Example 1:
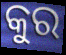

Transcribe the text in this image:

କୁର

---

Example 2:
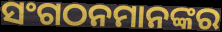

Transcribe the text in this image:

ସଂଗଠନମାନଙ୍କର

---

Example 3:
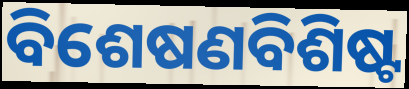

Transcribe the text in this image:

ବିଶେଷଣବିଶିଷ୍ଟ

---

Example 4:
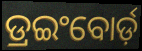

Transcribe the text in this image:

ଡ୍ରଇଂବୋର୍ଡ଼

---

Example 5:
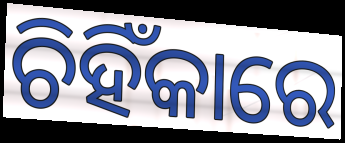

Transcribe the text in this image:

ଚିହିଁକାରେ